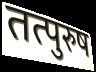
तत्पुरुष